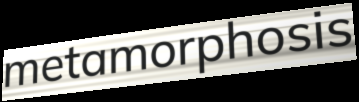
metamorphosis